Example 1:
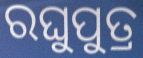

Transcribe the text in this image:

ରଘୁପୁତ୍ର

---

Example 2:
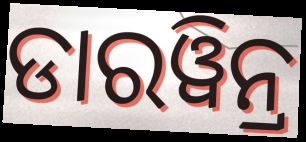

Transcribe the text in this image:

ଡାରୱିନ୍ର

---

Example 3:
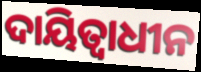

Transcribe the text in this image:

ଦାୟିତ୍ୱାଧୀନ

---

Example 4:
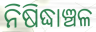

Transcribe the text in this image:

ନିଷିଦ୍ଧାଞ୍ଚଳ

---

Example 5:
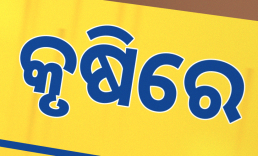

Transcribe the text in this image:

କୃଷିରେ